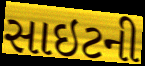
સાઇટની